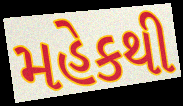
મહેકથી